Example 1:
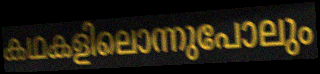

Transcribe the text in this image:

കഥകളിലൊന്നുപോലും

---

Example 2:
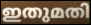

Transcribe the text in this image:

ഇതുമതി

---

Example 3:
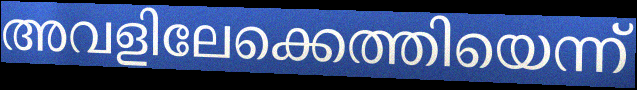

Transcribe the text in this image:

അവളിലേക്കെത്തിയെന്ന്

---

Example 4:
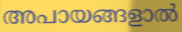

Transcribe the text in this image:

അപായങ്ങളാൽ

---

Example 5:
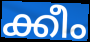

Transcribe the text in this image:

ക്കീം